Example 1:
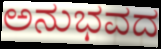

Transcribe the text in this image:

ಅನುಭವದ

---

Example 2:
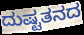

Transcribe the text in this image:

ದುಷ್ಟತನದ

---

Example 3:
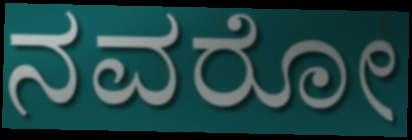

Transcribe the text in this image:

ನವರೋ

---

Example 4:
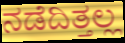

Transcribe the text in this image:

ನಡೆದಿತ್ತಲ್ಲ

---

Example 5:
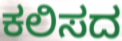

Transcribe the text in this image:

ಕಲಿಸದ